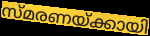
സ്മരണയ്ക്കായി